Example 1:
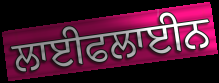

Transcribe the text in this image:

ਲਾਈਫਲਾਈਨ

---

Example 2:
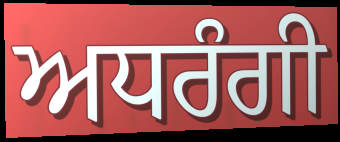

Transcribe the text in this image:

ਅਧਰੰਗੀ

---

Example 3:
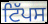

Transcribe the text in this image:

ਟਿੱਪਸ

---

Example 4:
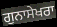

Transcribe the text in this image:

ਗੁਨਾਸੇਖਰਾ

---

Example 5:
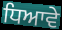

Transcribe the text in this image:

ਧਿਆਵੇ